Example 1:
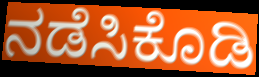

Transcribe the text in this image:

ನಡೆಸಿಕೊಡಿ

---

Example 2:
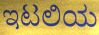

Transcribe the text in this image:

ಇಟಲಿಯ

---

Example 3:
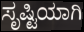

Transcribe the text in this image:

ಸೃಷ್ಟಿಯಾಗಿ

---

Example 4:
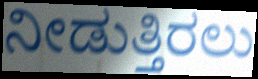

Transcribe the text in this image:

ನೀಡುತ್ತಿರಲು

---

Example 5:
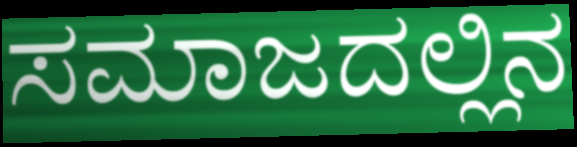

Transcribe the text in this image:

ಸಮಾಜದಲ್ಲಿನ